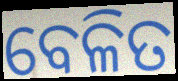
ବେଳିତ